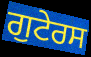
ਗੁਟੇਰਸ